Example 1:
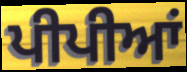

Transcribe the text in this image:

ਪੀਪੀਆਂ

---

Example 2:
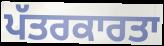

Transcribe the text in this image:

ਪੱਤਰਕਾਰਤਾ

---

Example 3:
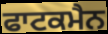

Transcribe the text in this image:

ਫਾਟਕਮੈਨ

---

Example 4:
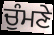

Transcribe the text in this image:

ਚੁੰਮਣੇ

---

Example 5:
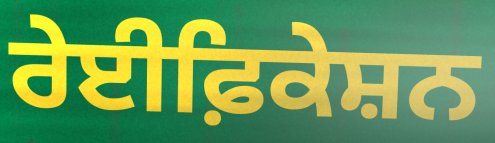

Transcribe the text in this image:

ਰੇਈਫ਼ਿਕੇਸ਼ਨ